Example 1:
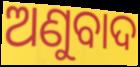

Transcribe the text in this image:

ଅଣୁବାଦ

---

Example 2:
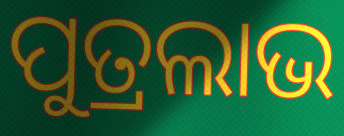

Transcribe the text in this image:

ପୁତ୍ରଲାଭ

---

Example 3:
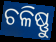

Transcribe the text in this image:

ଚଳିଷ୍ଣୁ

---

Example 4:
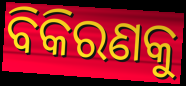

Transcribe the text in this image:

ବିକିରଣକୁ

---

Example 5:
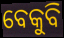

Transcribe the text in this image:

ବେକୁବି